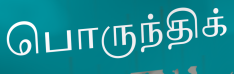
பொருந்திக்